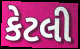
કેટલી